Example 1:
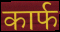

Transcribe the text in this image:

कार्फ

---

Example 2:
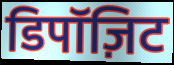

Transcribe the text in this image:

डिपॉज़िट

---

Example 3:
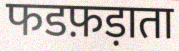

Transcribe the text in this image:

फडफ़ड़ाता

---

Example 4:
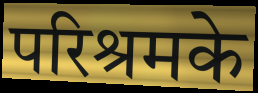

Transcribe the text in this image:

परिश्रमके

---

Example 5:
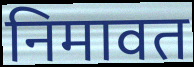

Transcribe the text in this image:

निमावत